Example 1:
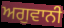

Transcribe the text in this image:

ਅਗੁਵਾਨੀ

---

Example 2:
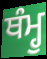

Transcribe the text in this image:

ਥੰਮ੍ਹ੍ਹੁ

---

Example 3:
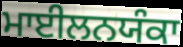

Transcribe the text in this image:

ਮਾਈਲਨਯੰਕਾ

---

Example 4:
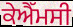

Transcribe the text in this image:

ਕੇਐੱਮਸੀ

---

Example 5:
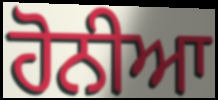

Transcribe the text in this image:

ਹੋਨੀਆ